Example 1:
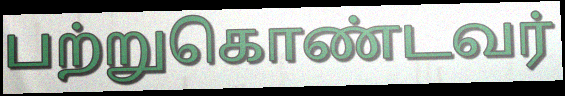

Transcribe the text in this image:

பற்றுகொண்டவர்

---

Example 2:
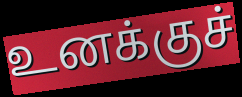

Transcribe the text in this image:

உனக்குச்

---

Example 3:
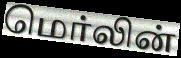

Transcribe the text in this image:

மெர்லின்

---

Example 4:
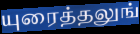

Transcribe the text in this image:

யுரைத்தலுங்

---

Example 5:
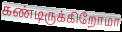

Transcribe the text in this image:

கண்டிருக்கிறோமா